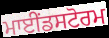
ਮਾਈਂਡਸਟੋਰਮ